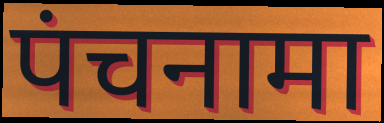
पंचनामा